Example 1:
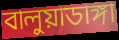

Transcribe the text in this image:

বালুয়াডাঙ্গা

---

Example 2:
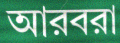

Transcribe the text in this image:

আরবরা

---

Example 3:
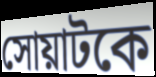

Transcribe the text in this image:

সোয়াটকে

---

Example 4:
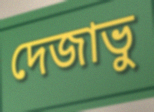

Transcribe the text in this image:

দেজাভু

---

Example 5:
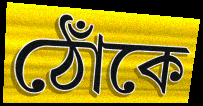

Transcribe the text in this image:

ঠোঁকে